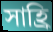
সাহ্রি